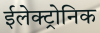
ईलेक्ट्रोनिक